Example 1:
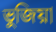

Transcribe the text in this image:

ভুজিয়া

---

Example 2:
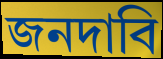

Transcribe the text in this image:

জনদাবি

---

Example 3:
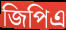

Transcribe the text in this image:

জিপিএ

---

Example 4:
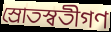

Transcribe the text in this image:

স্রোতস্বতীগণ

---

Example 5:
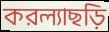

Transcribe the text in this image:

করল্যাছড়ি